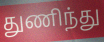
துணிந்து